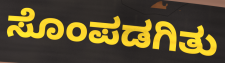
ಸೊಂಪಡಗಿತು